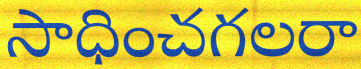
సాధించగలరా